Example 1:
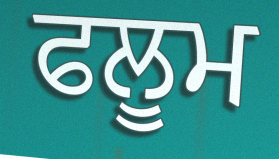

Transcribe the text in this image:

ਫਲੂਮ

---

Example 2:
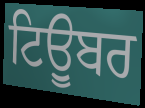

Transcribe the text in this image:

ਟਿਊੁਬਰ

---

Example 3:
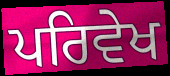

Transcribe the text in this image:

ਪਰਿਵੇਖ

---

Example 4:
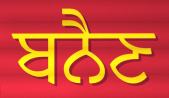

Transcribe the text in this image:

ਬਨੈਣ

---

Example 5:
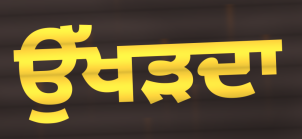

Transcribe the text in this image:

ਉੱਖੜਦਾ